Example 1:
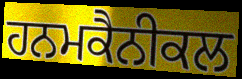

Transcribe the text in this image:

ਹਨਮਕੈਨੀਕਲ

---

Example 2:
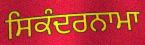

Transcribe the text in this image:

ਸਿਕੰਦਰਨਾਮਾ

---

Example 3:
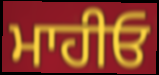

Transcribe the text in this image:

ਮਾਹੀਓ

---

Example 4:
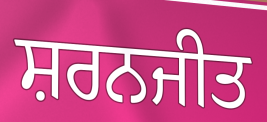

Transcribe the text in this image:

ਸ਼ਰਨਜੀਤ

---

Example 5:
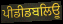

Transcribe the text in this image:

ਪੀਡੀਡਬਲਿਊ